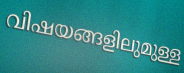
വിഷയങ്ങളിലുമുള്ള